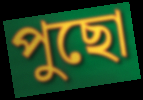
পুছো